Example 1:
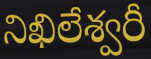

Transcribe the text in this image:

నిఖిలేశ్వరీ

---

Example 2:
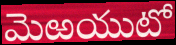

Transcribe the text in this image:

మెఱయుటో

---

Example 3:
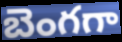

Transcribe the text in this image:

బెంగగా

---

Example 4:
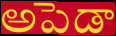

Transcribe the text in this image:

అపెడా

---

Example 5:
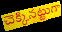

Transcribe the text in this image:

చెక్కినట్టుగా